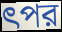
ৎপর